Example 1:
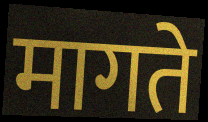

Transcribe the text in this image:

मागते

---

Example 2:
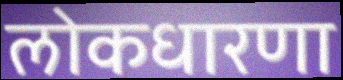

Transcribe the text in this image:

लोकधारणा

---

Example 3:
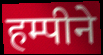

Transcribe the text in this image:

हम्पीने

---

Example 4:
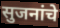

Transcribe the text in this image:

सुजनांचे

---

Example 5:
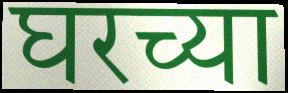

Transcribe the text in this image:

घरच्या